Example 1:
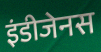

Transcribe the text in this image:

इंडीजेनस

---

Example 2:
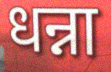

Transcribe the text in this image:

धन्ना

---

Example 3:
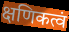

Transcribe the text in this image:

क्षणिकत्वं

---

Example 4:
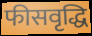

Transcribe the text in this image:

फीसवृद्धि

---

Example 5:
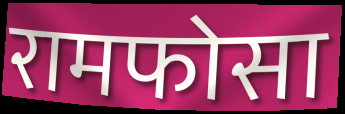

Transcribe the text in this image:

रामफोसा